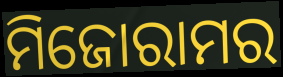
ମିଜୋରାମର